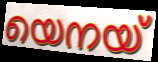
യെനയ്